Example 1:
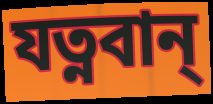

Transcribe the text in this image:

যত্নবান্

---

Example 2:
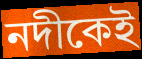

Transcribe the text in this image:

নদীকেই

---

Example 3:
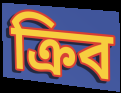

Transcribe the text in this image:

ক্রিব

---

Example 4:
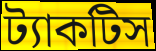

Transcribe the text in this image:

ট্যাকটিস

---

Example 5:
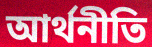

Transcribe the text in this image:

আর্থনীতি